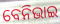
ବେନିଭାଇ